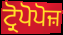
ਟ੍ਰੋਪੋਪੋਜ਼